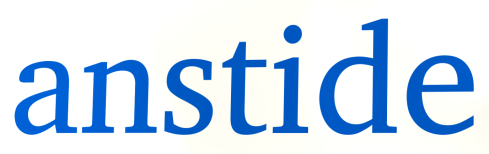
anstide